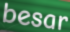
besar